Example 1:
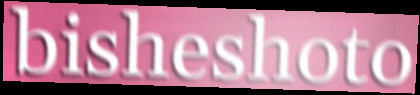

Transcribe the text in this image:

bisheshoto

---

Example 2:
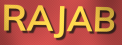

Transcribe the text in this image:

RAJAB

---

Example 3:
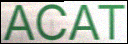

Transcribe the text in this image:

ACAT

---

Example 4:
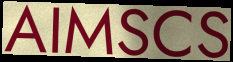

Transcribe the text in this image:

AIMSCS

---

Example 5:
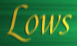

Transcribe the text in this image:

Lows